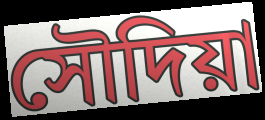
সৌদিয়া